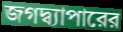
জগদ্ব্যাপারের